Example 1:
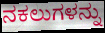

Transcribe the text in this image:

ನಕಲುಗಳನ್ನು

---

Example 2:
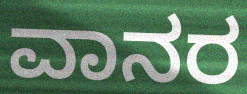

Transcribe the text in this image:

ವಾನರ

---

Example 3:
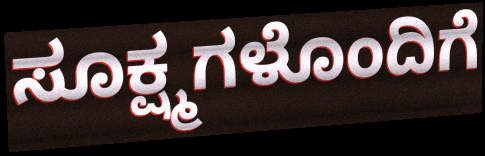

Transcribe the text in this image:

ಸೂಕ್ಷ್ಮಗಳೊಂದಿಗೆ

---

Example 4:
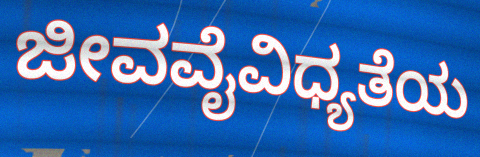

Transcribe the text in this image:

ಜೀವವೈವಿಧ್ಯತೆಯ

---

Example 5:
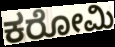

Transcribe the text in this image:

ಕರೋಮಿ